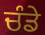
ਚੰਡੇ